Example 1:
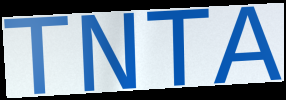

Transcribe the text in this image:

TNTA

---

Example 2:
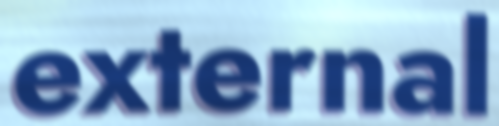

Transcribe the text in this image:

external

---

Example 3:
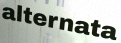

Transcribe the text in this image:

alternata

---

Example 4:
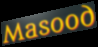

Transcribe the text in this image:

Masood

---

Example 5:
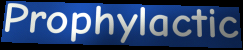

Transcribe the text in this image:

Prophylactic